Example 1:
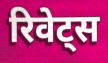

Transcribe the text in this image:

रिवेट्स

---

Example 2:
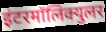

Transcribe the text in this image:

इंटरमॉलिक्युलर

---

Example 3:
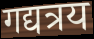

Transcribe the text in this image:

गद्यत्रय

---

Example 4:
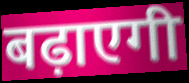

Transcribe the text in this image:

बढ़ाएगी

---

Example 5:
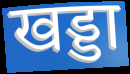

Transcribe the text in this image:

खड्डा